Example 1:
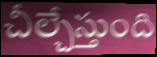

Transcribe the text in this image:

చీల్చేస్తుంది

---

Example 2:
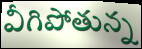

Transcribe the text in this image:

వీగిపోతున్న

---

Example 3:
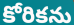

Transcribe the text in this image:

కోరికను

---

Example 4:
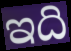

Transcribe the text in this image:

ఇది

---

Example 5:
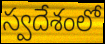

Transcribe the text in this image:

స్వదేశంలో